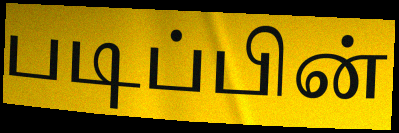
படிப்பின்